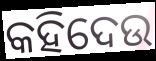
କହିଦେଉ